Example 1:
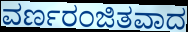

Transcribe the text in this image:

ವರ್ಣರಂಜಿತವಾದ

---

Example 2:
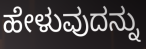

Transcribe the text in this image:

ಹೇಳುವುದನ್ನು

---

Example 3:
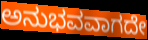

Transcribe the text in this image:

ಅನುಭವವಾಗದೇ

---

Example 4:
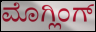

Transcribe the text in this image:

ಮೊಗ್ಲಿಂಗ್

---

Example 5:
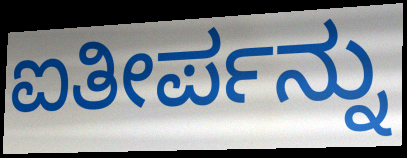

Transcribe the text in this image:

ಐತೀರ್ಪನ್ನು